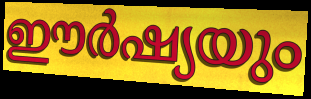
ഈർഷ്യയും